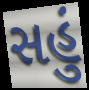
સહું